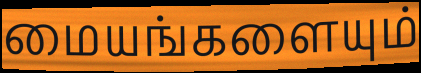
மையங்களையும்